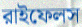
রাইফেলস